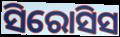
ସିରୋସିସ